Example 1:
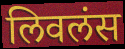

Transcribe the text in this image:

लिवलंस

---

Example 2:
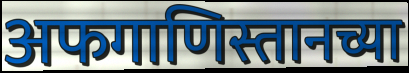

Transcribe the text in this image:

अफगाणिस्तानच्या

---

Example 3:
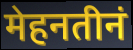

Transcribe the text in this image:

मेहनतीनं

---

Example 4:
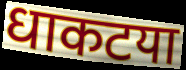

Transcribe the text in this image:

धाकटया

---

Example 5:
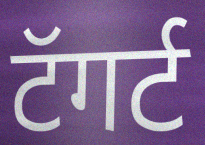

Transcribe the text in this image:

टॅगर्ट